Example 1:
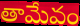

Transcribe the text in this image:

తామేవం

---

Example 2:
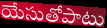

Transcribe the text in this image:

యేసుతోపాటు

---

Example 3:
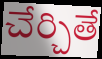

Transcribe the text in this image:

చేర్చితే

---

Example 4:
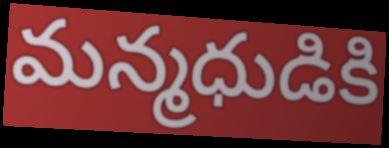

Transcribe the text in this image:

మన్మధుడికి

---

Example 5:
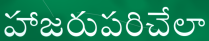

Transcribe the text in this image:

హాజరుపరిచేలా